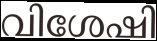
വിശേഷി